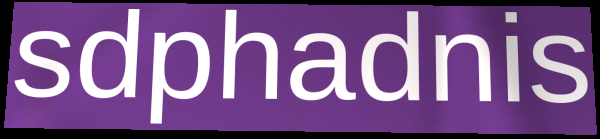
sdphadnis